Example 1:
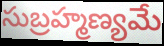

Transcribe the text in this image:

సుబ్రహ్మణ్యమే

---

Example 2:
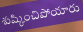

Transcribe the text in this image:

శుష్కించిపోయారు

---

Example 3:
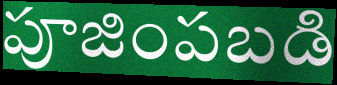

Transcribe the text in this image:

పూజింపబడి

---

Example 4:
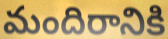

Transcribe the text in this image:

మందిరానికి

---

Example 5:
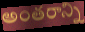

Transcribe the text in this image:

అంతరాన్ని